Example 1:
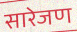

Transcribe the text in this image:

सारेजण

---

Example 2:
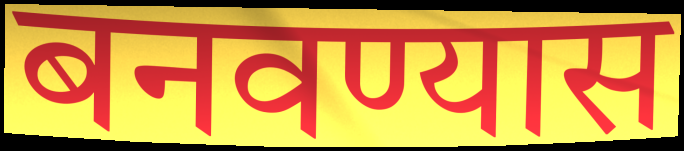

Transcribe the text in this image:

बनवण्यास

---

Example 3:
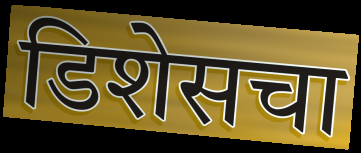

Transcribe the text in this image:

डिशेसचा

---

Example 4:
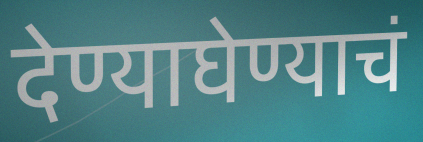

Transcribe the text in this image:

देण्याघेण्याचं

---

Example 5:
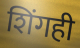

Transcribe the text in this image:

शिंगही